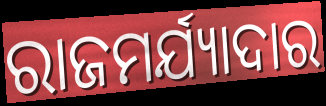
ରାଜମର୍ଯ୍ୟାଦାର